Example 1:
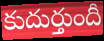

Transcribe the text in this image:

కుదుర్తుందీ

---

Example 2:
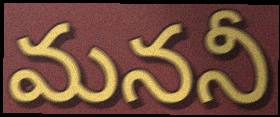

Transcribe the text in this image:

మననీ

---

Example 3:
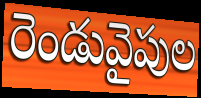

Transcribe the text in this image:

రెండువైపుల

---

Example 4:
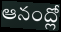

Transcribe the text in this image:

ఆనంద్లో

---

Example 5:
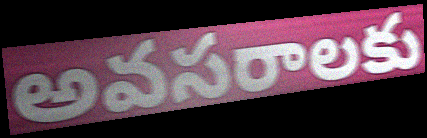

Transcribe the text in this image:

అవసరాలకు